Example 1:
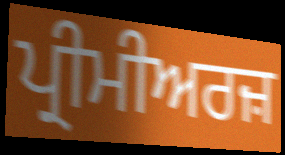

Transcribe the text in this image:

ਪ੍ਰੀਮੀਅਰਜ਼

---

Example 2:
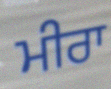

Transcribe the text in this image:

ਮੀਰਾ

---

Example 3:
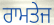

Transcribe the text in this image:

ਰਾਮਤੇਜ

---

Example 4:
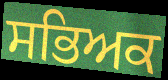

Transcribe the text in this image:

ਸਭਿਅਕ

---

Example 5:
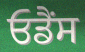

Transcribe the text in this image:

ਓਡੈਂਸ